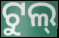
ଟୁଲ୍